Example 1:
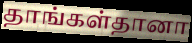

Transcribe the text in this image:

தாங்கள்தானா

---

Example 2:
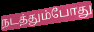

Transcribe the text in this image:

நடத்தும்போது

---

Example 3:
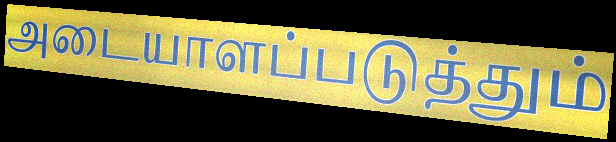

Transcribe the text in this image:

அடையாளப்படுத்தும்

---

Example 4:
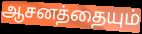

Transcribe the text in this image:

ஆசனத்தையும்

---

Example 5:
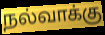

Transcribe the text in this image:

நல்வாக்கு